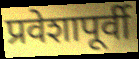
प्रवेशापूर्वी